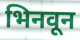
भिनवून